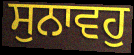
ਸੁਨਾਵਹੁ